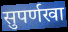
सुपर्णखा